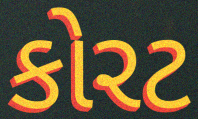
કોરટ